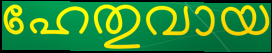
ഹേതുവായ